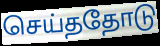
செய்ததோடு